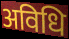
अविधि